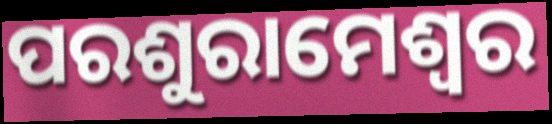
ପରଶୁରାମେଶ୍ୱର